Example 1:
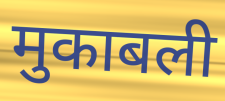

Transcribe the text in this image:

मुकाबली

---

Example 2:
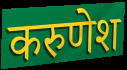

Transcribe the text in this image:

करुणेश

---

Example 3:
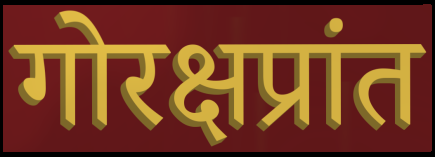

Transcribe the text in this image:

गोरक्षप्रांत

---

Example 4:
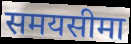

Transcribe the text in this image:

समयसीमा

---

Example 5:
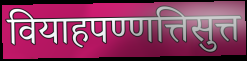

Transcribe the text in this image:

वियाहपण्णत्तिसुत्त